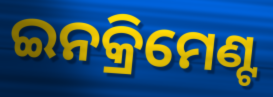
ଇନକ୍ରିମେଣ୍ଟ